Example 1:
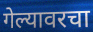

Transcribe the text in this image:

गेल्यावरचा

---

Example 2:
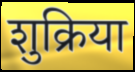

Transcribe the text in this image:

शुक्रिया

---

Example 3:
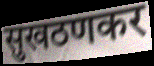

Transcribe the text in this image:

सुखठणकर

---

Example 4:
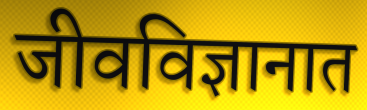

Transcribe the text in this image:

जीवविज्ञानात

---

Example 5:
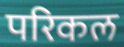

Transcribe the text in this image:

परिकल